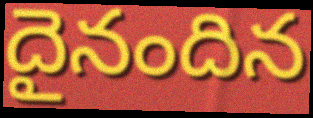
దైనందిన